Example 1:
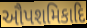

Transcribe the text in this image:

ઔપશમિકાદિ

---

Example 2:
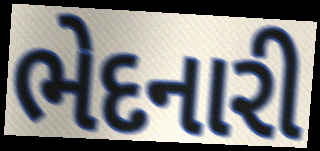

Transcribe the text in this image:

ભેદનારી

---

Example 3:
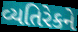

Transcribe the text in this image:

વ્યતિરેકને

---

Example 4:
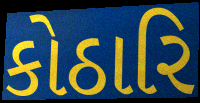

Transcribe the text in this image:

કોઠારિ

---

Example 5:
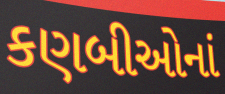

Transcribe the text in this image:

કણબીઓનાં